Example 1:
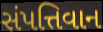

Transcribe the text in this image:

સંપત્તિવાન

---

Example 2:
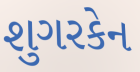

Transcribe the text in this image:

શુગરકેન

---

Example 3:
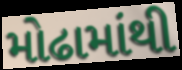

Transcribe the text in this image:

મોઢામાંથી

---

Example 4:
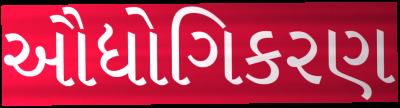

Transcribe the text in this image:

ઔદ્યોગિકરણ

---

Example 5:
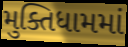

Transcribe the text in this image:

મુક્તિધામમાં